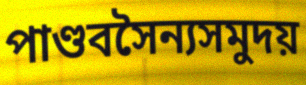
পাণ্ডবসৈন্যসমুদয়